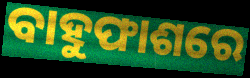
ବାହୁଫାଶରେ